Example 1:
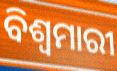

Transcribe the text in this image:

ବିଶ୍ୱମାରୀ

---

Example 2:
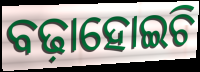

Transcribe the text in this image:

ବଢ଼ାହୋଇଚି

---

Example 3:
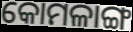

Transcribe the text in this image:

କୋମଳାଙ୍ଗ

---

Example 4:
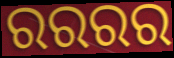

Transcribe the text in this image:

ରରରର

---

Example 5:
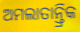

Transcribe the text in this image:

ଅମଲାତାନ୍ତ୍ରିକ